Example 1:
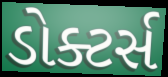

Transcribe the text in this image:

ડોક્ટર્સ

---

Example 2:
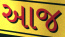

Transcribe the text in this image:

આજ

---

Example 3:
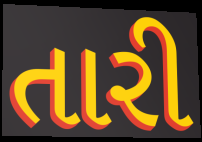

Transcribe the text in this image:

તારી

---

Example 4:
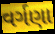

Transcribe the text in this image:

વર્ગણા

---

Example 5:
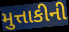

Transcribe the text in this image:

મુત્તાકીની